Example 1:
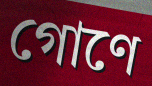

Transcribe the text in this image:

গোণে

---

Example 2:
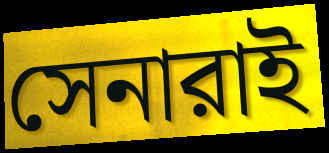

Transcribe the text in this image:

সেনারাই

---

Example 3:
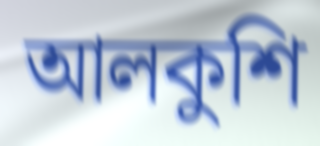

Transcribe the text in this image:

আলকুশি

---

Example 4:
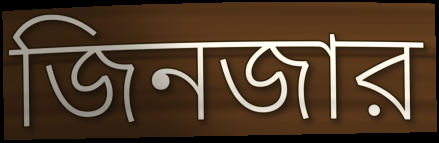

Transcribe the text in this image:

জিনজার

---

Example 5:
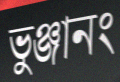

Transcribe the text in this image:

ভুঞ্জানং